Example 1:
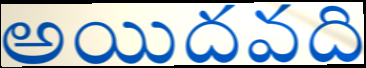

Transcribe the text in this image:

అయిదవది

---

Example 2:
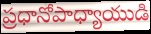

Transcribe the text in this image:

ప్రధానోపాధ్యాయుడి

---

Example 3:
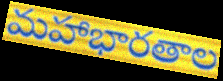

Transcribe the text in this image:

మహాభారతాల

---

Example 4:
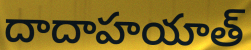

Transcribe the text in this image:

దాదాహయాత్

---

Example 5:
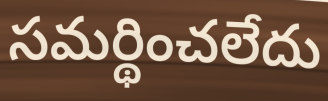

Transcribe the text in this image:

సమర్థించలేదు